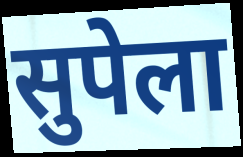
सुपेला